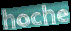
hoche